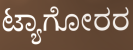
ಟ್ಯಾಗೋರರ